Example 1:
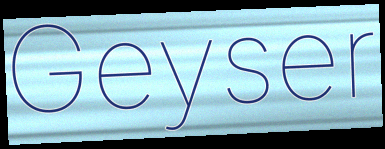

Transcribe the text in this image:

Geyser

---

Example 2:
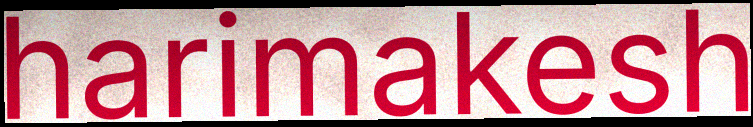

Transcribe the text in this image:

harimakesh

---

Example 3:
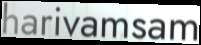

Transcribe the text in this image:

harivamsam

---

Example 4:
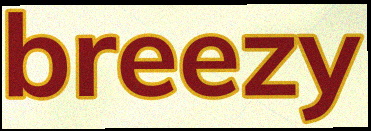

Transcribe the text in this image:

breezy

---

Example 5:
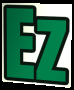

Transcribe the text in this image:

Ez